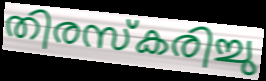
തിരസ്കരിച്ചു